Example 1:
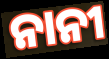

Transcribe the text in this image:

ନାନୀ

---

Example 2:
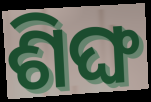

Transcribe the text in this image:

ଶିଙ୍ଘ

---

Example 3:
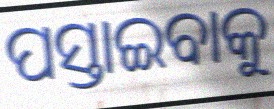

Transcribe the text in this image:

ପସ୍ତାଇବାକୁ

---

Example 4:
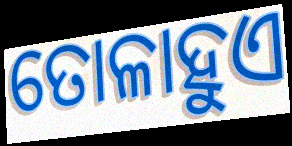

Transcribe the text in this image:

ତୋଳାହୁଏ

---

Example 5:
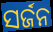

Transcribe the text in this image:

ସର୍ଜନ